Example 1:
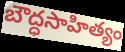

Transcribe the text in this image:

బౌద్ధసాహిత్యం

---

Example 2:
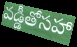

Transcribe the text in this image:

వడ్డీతోసహా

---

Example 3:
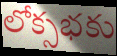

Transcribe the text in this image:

లోక్సభకు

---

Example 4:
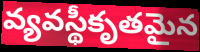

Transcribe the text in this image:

వ్యవస్థీకృతమైన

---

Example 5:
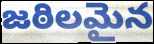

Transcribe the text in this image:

జఠిలమైన